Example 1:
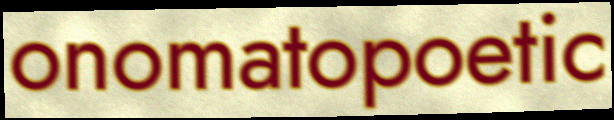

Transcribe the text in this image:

onomatopoetic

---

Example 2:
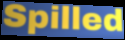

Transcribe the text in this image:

Spilled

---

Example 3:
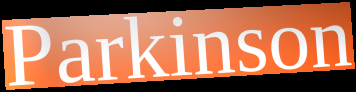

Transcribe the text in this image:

Parkinson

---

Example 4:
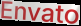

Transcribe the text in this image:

Envato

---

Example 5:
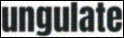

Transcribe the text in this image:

ungulate